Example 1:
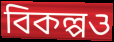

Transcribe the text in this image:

বিকল্পও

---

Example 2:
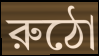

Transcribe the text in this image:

রুঠো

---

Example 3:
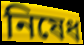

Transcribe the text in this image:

নিষেধ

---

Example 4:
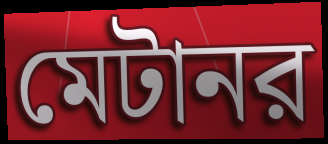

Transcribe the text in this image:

মেটানর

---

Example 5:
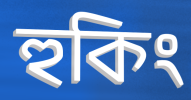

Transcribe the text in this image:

হুকিং